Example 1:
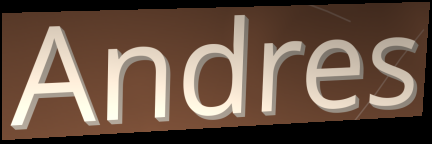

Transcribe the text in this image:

Andres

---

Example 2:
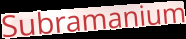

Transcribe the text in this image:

Subramanium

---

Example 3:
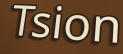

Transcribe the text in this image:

Tsion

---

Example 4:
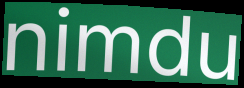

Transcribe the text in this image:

nimdu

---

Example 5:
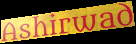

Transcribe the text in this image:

Ashirwad